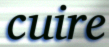
cuire